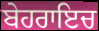
ਬੇਹਰਾਇਚ